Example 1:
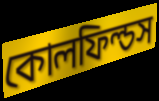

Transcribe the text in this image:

কোলফিল্ডস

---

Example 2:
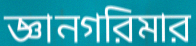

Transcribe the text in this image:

জ্ঞানগরিমার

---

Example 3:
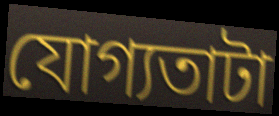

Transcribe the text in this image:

যোগ্যতাটা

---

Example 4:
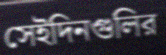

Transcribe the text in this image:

সেইদিনগুলির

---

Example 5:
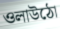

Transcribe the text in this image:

ওলাউঠো